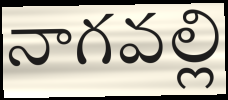
నాగవల్లి